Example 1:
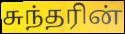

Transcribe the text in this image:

சுந்தரின்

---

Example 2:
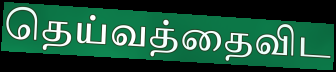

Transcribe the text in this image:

தெய்வத்தைவிட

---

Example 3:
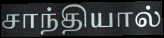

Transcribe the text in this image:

சாந்தியால்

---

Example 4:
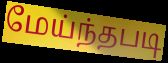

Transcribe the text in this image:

மேய்ந்தபடி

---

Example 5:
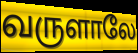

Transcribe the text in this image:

வருளாலே